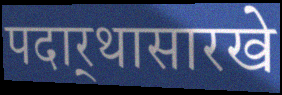
पदार्थासारखे